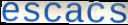
escacs